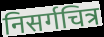
निसर्गचित्र